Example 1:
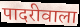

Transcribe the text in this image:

पादरीवाला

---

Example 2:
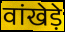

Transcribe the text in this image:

वांखेड़े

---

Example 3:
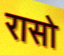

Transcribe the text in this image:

रासो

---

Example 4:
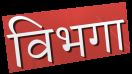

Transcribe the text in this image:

विभगा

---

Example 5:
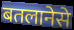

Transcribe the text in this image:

बतलानेसे